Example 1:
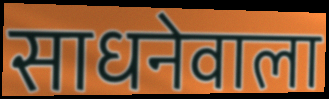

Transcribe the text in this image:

साधनेवाला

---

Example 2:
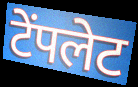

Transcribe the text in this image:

टेंपलेट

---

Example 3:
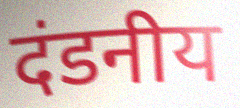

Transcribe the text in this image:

दंडनीय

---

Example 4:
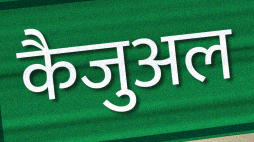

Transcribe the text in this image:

कैजुअल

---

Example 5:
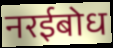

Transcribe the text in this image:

नरईबोध